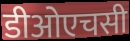
डीओएचसी